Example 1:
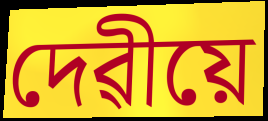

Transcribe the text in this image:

দেৱীয়ে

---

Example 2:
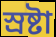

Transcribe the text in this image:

স্ৰষ্টা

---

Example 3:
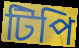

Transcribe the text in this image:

টিপি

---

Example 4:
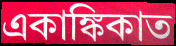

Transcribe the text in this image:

একাঙ্কিকাত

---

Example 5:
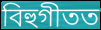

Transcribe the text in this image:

বিহুগীতত